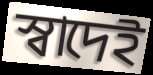
স্বাদেই